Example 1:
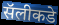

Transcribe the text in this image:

सॅलीकडे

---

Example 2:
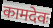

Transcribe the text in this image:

कामदेवः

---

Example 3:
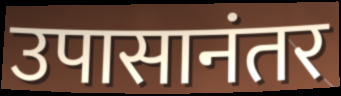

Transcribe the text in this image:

उपासानंतर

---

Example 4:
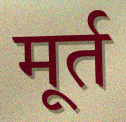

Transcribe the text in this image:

मूर्त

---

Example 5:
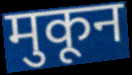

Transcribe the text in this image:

मुकून